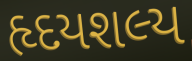
હૃદયશલ્ય